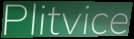
Plitvice